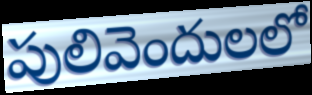
పులివెందులలో